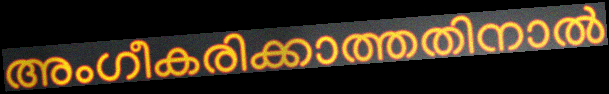
അംഗീകരിക്കാത്തതിനാൽ